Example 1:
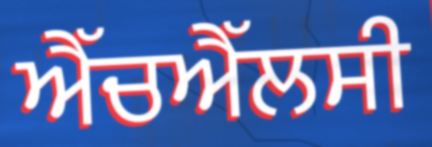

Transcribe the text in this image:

ਐੱਚਐੱਲਸੀ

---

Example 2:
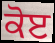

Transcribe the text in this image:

ਕੋੲ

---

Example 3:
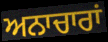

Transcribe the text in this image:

ਅਨਾਚਾਰਾਂ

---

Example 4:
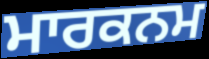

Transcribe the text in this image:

ਮਾਰਕਨਮ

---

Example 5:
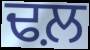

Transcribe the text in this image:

ਢਲ਼